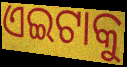
ଏଇଟାକୁ